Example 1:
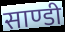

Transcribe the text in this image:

साण्डी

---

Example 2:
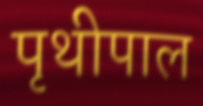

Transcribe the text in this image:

पृथीपाल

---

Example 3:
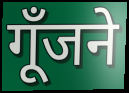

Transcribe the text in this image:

गूँजने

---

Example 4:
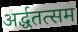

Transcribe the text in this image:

अर्द्धतत्सम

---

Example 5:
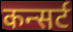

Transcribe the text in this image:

कन्सर्ट